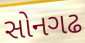
સોનગઢ